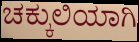
ಚಕ್ಕುಲಿಯಾಗಿ